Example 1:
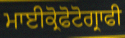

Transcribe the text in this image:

ਮਾਈਕ੍ਰੋਫੋਟੋਗ੍ਰਾਫੀ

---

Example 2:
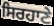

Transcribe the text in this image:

ਸਿਰਹਾਣੇ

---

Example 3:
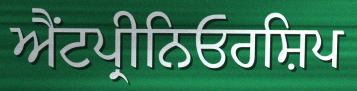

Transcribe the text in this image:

ਐਂਟਪ੍ਰੀਨਿਓਰਸ਼ਿਪ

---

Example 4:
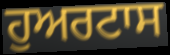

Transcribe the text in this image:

ਹੁਅਰਟਾਸ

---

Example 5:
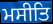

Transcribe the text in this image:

ਮਸੀਤਿ